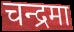
चन्द्रमा